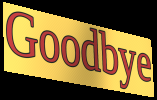
Goodbye